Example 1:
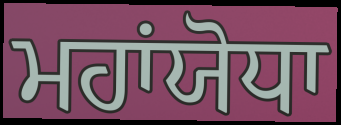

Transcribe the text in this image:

ਮਹਾਂਯੋਧਾ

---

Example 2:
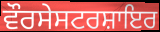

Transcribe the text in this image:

ਵੌਰਸੇਸਟਰਸ਼ਾਇਰ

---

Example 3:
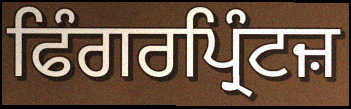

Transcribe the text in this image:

ਫਿੰਗਰਪ੍ਰਿੰਟਜ਼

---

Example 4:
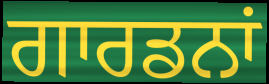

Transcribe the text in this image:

ਗਾਰਡਨਾਂ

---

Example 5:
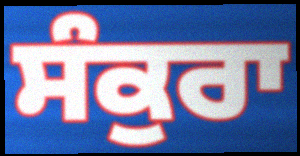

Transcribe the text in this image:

ਸੰਕੁਰਾ